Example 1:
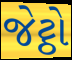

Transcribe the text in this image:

જેટ્ઠો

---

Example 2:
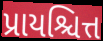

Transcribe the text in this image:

પ્રાયશ્ચિત્ત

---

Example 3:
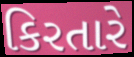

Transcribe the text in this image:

કિરતારે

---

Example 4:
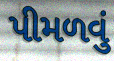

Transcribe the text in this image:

પીમળવું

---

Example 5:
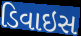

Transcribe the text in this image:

ડિવાઇસ